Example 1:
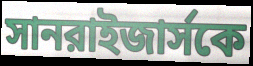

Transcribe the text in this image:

সানরাইজার্সকে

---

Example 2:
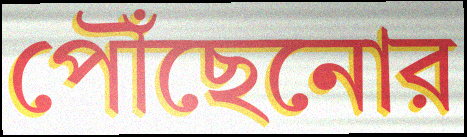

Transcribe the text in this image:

পৌঁছেনোর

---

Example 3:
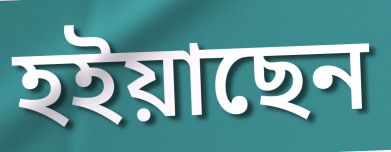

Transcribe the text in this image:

হইয়াছেন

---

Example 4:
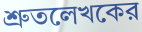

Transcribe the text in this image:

শ্রুতলেখকের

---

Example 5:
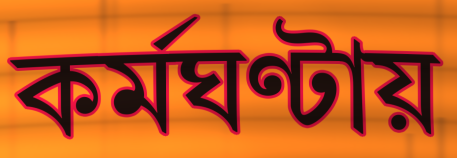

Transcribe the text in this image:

কর্মঘণ্টায়